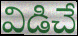
విడిచే